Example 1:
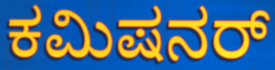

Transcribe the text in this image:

ಕಮಿಷನರ್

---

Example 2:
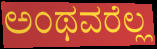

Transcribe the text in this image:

ಅಂಥವರೆಲ್ಲ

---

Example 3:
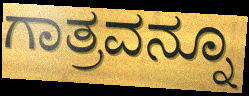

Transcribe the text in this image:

ಗಾತ್ರವನ್ನೂ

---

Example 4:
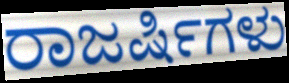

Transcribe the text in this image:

ರಾಜರ್ಷಿಗಳು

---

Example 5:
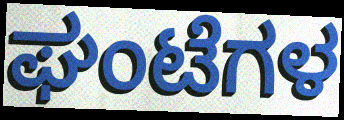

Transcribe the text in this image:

ಘಂಟೆಗಳ